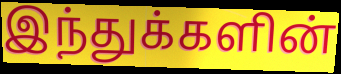
இந்துக்களின்